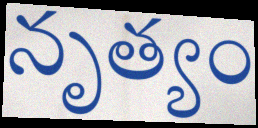
నృత్యం